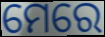
ମେରେ